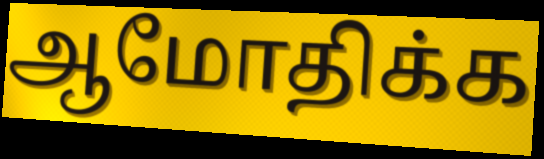
ஆமோதிக்க